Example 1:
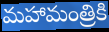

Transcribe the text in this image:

మహామంత్రికి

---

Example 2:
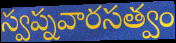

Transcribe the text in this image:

స్వప్నవారసత్వం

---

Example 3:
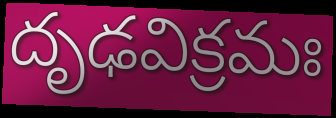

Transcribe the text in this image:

దృఢవిక్రమః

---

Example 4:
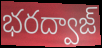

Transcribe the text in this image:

భరద్వాజ్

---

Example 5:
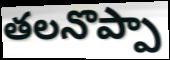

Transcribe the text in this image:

తలనొప్పా